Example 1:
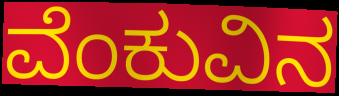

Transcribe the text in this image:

ವೆಂಕುವಿನ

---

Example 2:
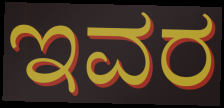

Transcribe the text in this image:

ಇವರ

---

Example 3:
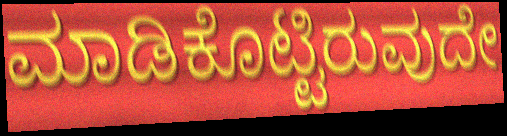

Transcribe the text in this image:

ಮಾಡಿಕೊಟ್ಟಿರುವುದೇ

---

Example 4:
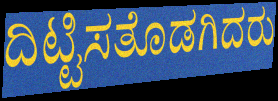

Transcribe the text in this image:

ದಿಟ್ಟಿಸತೊಡಗಿದರು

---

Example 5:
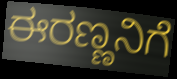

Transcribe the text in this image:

ಈರಣ್ಣನಿಗೆ